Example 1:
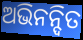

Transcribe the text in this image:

ଅଭିନନ୍ଦିତ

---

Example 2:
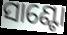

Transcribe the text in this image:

ସାଣ୍ଟୋ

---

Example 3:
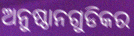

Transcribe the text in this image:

ଅନୁଷ୍ଠାନଗୁଡିକର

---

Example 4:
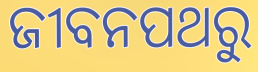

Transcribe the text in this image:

ଜୀବନପଥରୁ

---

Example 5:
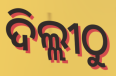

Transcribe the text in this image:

ଦିଲ୍ଲୀଠୁ